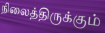
நிலைத்திருக்கும்